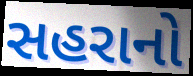
સહરાનો